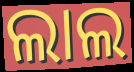
ଲାଲ